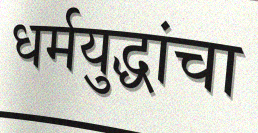
धर्मयुद्धांचा